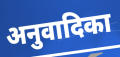
अनुवादिका